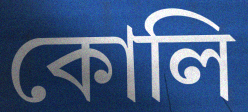
কোলি